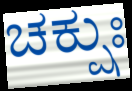
ಚಕ್ಷುಃ